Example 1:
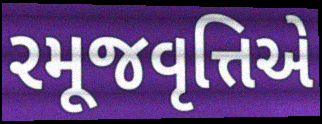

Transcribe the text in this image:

રમૂજવૃત્તિએ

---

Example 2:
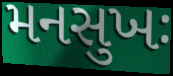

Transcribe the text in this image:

મનસુખઃ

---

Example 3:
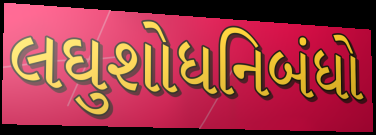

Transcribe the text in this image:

લઘુશોધનિબંધો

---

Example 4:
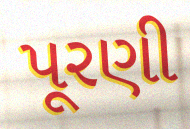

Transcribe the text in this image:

પૂરણી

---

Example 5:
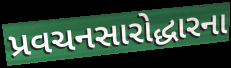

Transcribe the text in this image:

પ્રવચનસારોદ્ધારના